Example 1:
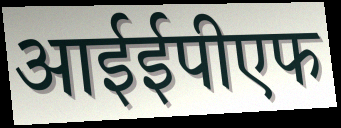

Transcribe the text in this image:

आईईपीएफ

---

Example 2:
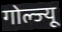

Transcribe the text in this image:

गोल्ज्यू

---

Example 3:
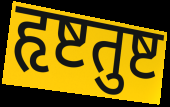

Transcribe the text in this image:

हृष्टतुष्ट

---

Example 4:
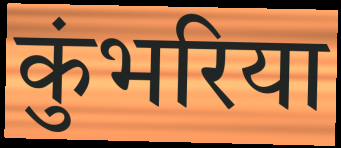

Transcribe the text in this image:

कुंभरिया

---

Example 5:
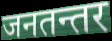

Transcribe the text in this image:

जनतन्तर